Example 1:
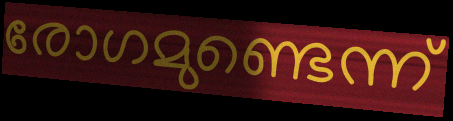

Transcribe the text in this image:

രോഗമുണ്ടെന്ന്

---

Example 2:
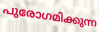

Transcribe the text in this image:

പുരോഗമിക്കുന്ന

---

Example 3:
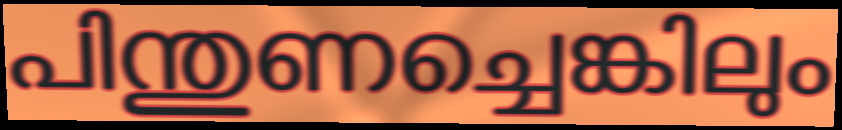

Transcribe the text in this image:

പിന്തുണച്ചെങ്കിലും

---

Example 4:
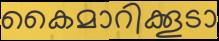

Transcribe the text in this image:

കൈമാറിക്കൂടാ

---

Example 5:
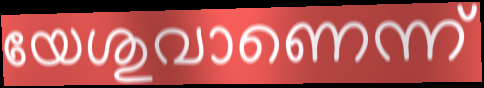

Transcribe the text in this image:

യേശുവാണെന്ന്